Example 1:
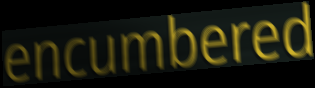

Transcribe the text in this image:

encumbered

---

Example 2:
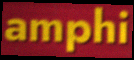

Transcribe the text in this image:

amphi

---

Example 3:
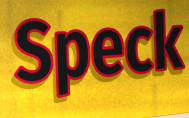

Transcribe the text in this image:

Speck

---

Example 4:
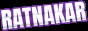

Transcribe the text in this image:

RATNAKAR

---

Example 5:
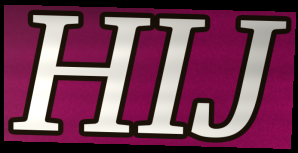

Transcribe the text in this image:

HIJ